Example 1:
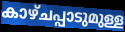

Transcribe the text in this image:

കാഴ്ചപ്പാടുമുള്ള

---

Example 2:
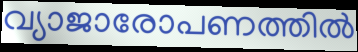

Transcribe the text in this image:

വ്യാജാരോപണത്തിൽ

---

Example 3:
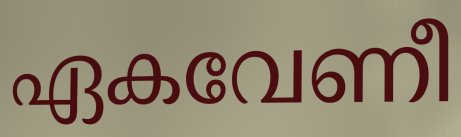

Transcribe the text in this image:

ഏകവേണീ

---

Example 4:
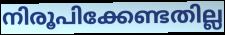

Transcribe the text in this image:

നിരൂപിക്കേണ്ടതില്ല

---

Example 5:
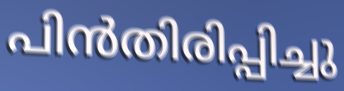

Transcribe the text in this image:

പിൻതിരിപ്പിച്ചു